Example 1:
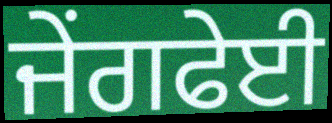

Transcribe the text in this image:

ਜੇਂਗਫੇਈ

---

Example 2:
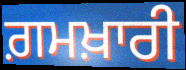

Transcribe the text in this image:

ਗ਼ਮਖ਼ਾਰੀ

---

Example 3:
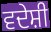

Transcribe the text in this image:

ਵਦੇਸ਼ੀ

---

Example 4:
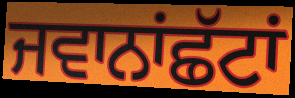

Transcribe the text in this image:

ਜਵਾਨਾਂਛੱਟਾਂ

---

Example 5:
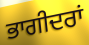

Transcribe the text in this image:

ਭਾਗੀਦਰਾਂ